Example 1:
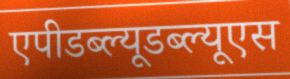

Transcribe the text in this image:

एपीडब्ल्यूडब्ल्यूएस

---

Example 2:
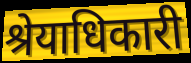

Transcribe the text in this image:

श्रेयाधिकारी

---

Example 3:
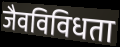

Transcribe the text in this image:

जैवविविधता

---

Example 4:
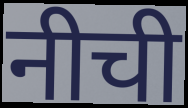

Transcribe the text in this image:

नीची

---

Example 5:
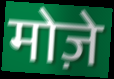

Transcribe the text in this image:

मोज़े